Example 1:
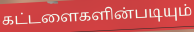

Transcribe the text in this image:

கட்டளைகளின்படியும்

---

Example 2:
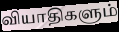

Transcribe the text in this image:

வியாதிகளும்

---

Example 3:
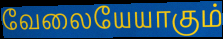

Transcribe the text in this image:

வேலையேயாகும்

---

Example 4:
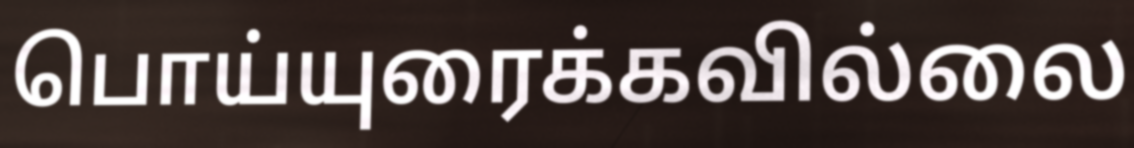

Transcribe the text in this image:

பொய்யுரைக்கவில்லை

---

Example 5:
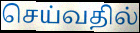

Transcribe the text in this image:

செய்வதில்